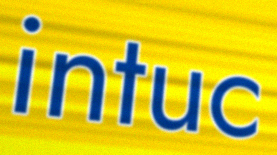
intuc